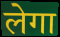
लेगा